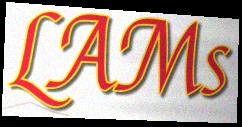
LAMs